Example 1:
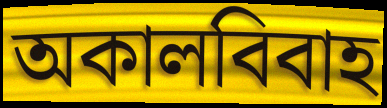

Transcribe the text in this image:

অকালবিবাহ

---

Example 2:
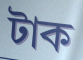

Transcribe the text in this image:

টাক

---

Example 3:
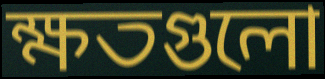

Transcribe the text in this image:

ক্ষতগুলো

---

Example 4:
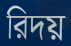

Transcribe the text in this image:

রিদয়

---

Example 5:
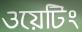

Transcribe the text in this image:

ওয়েটিং